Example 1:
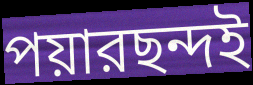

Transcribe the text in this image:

পয়ারছন্দই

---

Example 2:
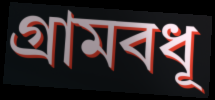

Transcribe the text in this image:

গ্রামবধূ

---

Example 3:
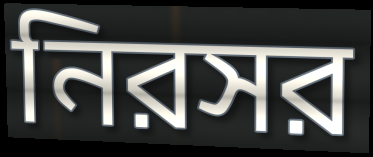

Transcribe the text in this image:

নিরসর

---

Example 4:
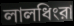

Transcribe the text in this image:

লালধিংরা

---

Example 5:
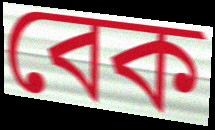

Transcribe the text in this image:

বেক